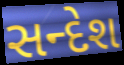
સન્દેશ